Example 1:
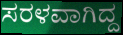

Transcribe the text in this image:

ಸರಳವಾಗಿದ್ದ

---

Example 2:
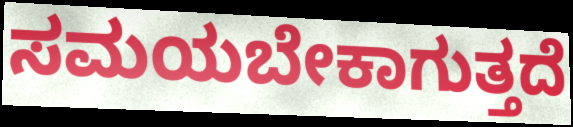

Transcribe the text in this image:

ಸಮಯಬೇಕಾಗುತ್ತದೆ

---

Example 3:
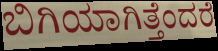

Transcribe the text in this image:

ಬಿಗಿಯಾಗಿತ್ತೆಂದರೆ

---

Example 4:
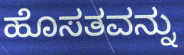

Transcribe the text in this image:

ಹೊಸತವನ್ನು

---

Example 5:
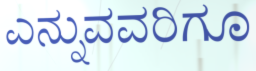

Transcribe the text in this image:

ಎನ್ನುವವರಿಗೂ